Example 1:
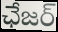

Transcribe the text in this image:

ఛేజర్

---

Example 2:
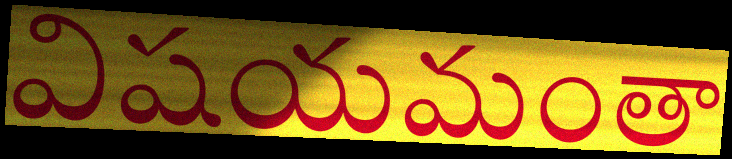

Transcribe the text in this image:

విషయమంతా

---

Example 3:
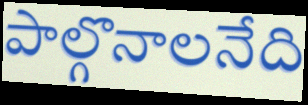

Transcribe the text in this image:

పాల్గొనాలనేది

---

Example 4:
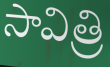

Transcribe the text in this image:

సావిత్రి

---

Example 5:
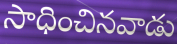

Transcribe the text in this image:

సాధించినవాడు